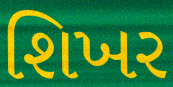
શિખર